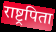
राष्ट्रपिता